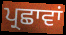
ਪ੍ਰਛਾਵਾਂ